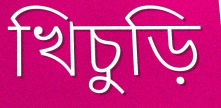
খিচুড়ি